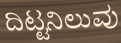
ದಿಟ್ಟನಿಲುವು